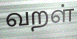
வறள்